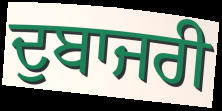
ਦੁਬਾਜਰੀ